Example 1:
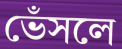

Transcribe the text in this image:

ভেঁসলে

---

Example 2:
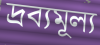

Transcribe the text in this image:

দ্রব্যমূল্য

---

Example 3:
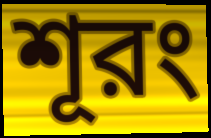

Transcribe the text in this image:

শূরং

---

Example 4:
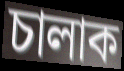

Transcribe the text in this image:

চালাক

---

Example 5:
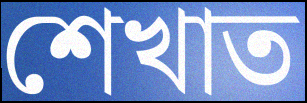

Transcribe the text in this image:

শেখাত